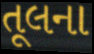
તૂલના